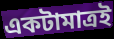
একটামাত্রই